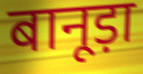
बानूड़ा